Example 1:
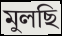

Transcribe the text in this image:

মুলছি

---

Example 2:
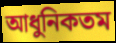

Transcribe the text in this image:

আধুনিকতম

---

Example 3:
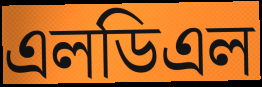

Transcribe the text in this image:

এলডিএল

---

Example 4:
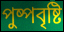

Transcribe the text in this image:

পুষ্পবৃষ্টি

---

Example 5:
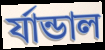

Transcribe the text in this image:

র্যান্ডাল